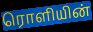
ரொளியின்